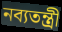
নব্যতন্ত্রী